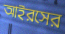
আইরসের